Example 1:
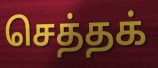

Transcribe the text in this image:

செத்தக்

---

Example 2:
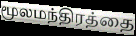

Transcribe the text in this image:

மூலமந்திரத்தை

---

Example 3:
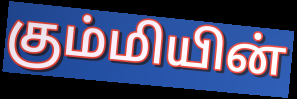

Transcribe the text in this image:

கும்மியின்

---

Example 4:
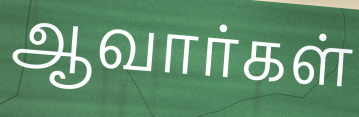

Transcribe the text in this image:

ஆவார்கள்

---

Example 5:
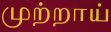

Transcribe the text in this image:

முற்றாய்